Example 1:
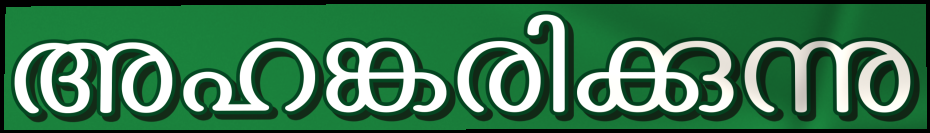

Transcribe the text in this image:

അഹങ്കരിക്കുന്നു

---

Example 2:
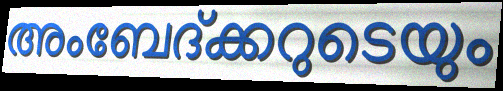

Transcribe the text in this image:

അംബേദ്ക്കറുടെയും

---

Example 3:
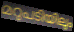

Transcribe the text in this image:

മറുപടിയിലും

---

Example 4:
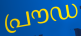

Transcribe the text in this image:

പ്രൗഡ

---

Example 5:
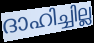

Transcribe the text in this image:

ദാഹിച്ചില്ല